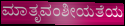
ಮಾತೃವಂಶೀಯತೆಯ